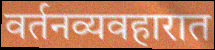
वर्तनव्यवहारात